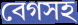
বেগসহ